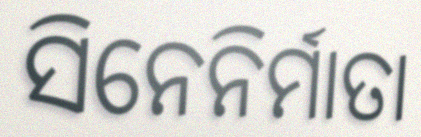
ସିନେନିର୍ମାତା